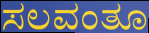
ಸಲವಂತೂ